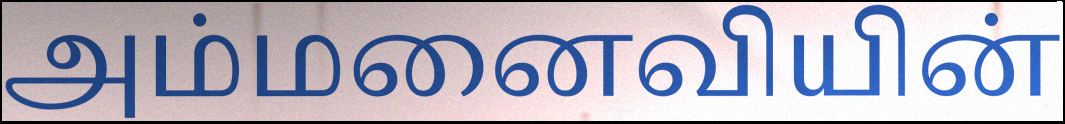
அம்மனைவியின்